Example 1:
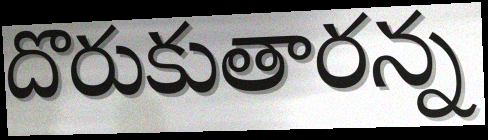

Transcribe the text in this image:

దొరుకుతారన్న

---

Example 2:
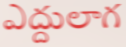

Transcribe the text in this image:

ఎద్దులాగ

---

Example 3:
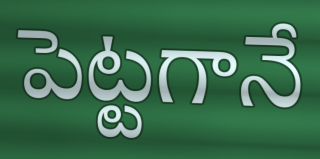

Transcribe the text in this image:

పెట్టగానే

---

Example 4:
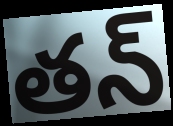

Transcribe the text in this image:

తన్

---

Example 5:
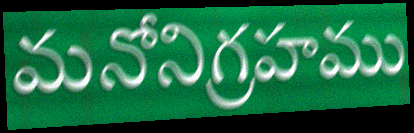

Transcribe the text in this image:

మనోనిగ్రహము